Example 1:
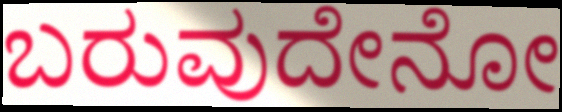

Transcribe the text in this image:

ಬರುವುದೇನೋ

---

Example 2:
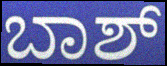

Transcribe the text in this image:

ಬಾಶ್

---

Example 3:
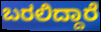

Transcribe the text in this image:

ಬರಲಿದ್ದಾರೆ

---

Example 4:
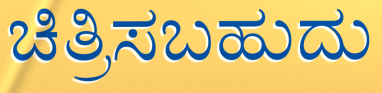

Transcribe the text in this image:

ಚಿತ್ರಿಸಬಹುದು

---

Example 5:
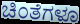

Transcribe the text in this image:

ಚಿಂತೆಗಳೂ